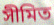
সীমিত